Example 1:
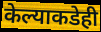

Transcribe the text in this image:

केल्याकडेही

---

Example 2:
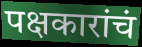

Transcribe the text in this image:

पक्षकारांचं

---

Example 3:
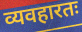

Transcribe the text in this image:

व्यवहारतः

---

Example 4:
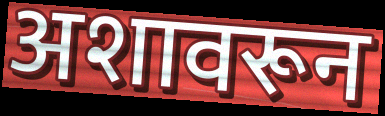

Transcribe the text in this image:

अशावरून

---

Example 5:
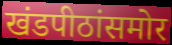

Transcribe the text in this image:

खंडपीठांसमोर